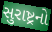
સુરાષ્ટ્રનો